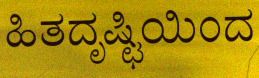
ಹಿತದೃಷ್ಟಿಯಿಂದ